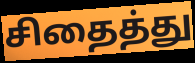
சிதைத்து